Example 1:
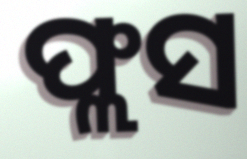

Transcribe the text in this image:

ଫ୍ଲସ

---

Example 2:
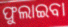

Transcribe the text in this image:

ଫୁଲାଇବା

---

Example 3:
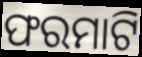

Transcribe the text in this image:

ଫରମାଟି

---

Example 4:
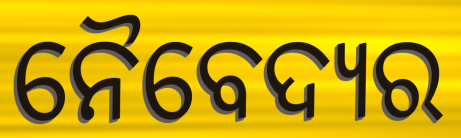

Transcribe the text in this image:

ନୈବେଦ୍ୟର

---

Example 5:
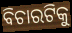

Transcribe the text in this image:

ବିଚାରଟିକୁ